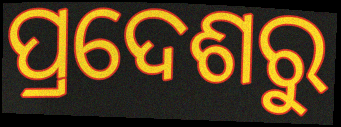
ପ୍ରଦେଶରୁ